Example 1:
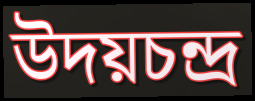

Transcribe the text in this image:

উদয়চন্দ্র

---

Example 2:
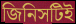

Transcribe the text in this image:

জিনিসটিই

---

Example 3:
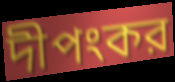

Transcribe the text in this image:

দীপংকর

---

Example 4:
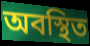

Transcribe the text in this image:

অবস্থিত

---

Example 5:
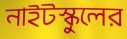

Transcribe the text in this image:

নাইটস্কুলের